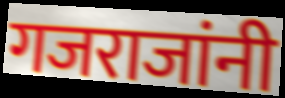
गजराजांनी